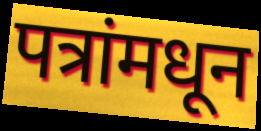
पत्रांमधून